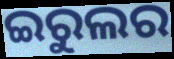
ଇରୁଲର